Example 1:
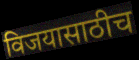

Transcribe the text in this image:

विजयासाठीच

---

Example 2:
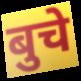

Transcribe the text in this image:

बुचे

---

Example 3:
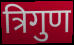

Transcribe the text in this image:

त्रिगुण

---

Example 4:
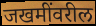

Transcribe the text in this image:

जखमींवरील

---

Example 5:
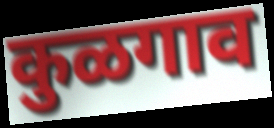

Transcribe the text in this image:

कुळगाव